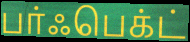
பர்ஃபெக்ட்